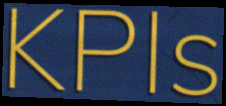
KPIs